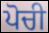
ਪੋਚੀ